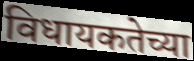
विधायकतेच्या